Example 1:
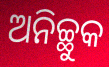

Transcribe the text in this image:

ଅନିଚ୍ଛୁକ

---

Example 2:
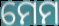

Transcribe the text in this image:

ମେମ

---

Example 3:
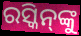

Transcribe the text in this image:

ରସ୍କିନ୍‌ଙ୍କୁ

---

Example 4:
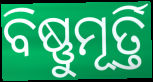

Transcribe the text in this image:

ବିଷ୍ଣୁମୂର୍ତ୍ତି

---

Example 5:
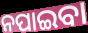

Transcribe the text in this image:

ନପାଇବା